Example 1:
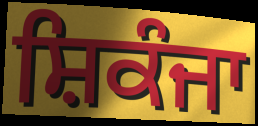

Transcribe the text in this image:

ਸ਼ਿਕੰਜਾ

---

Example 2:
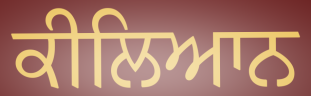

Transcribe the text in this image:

ਕੀਲਿਆਨ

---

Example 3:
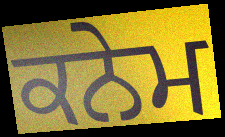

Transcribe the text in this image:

ਕਨੇਮ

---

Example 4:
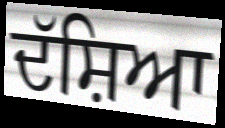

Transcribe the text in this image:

ਦੱਸ਼ਿਆ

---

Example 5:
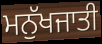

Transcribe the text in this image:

ਮਨੁੱਖਜਾਤੀ